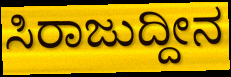
ಸಿರಾಜುದ್ದೀನ